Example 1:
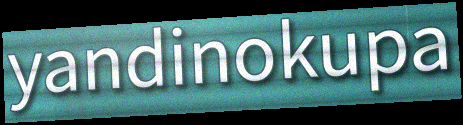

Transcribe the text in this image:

yandinokupa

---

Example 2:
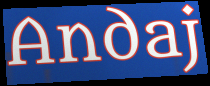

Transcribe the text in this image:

Andaj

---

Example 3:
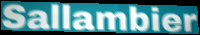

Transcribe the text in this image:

Sallambier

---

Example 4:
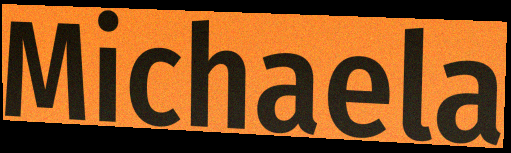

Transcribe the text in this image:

Michaela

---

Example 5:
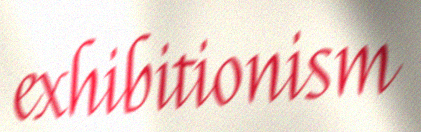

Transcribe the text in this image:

exhibitionism